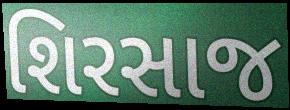
શિરસાજ